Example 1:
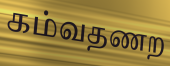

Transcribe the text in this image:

கம்வதணற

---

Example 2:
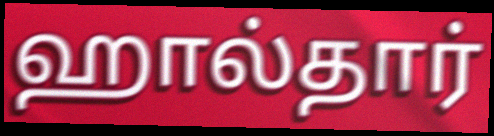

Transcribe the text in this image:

ஹால்தார்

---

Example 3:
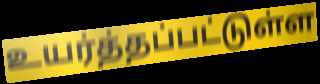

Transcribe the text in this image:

உயர்த்தப்பட்டுள்ள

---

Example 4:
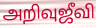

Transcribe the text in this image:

அறிவுஜீவி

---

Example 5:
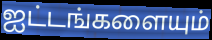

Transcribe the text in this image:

ஐட்டங்களையும்